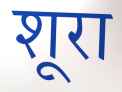
शूरा